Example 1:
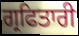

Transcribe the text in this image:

ਗ੍ਰਫਿਤਾਰੀ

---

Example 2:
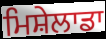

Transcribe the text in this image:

ਮਿਸ਼ੇਲਾਡਾ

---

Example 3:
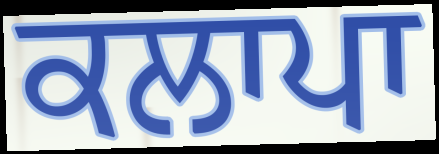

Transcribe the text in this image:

ਕਲਾਪਾ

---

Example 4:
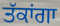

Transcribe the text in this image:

ਤੱਕਾਂਗਾ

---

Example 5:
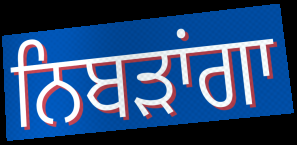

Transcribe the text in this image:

ਨਿਬੜਾਂਗਾ